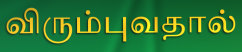
விரும்புவதால்